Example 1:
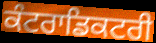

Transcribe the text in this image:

ਕੰਟਰਾਡਿਕਟਰੀ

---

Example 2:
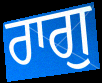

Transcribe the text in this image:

ਰਾਗੁ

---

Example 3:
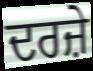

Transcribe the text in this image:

ਦਰਜ਼ੇ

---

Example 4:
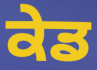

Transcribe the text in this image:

ਕੇਡ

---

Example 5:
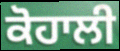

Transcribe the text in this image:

ਕੋਹਾਲੀ